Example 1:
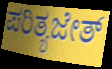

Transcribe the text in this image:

ಪರಿತ್ಯಜೇತ್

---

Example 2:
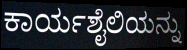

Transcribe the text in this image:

ಕಾರ್ಯಶೈಲಿಯನ್ನು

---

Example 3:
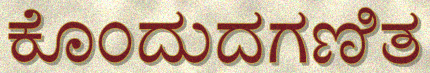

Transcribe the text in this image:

ಕೊಂದುದಗಣಿತ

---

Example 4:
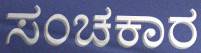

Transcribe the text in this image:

ಸಂಚಕಾರ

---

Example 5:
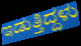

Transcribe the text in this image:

ಇಡುತ್ತಿದ್ದಳು